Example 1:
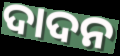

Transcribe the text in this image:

ଦାଦନ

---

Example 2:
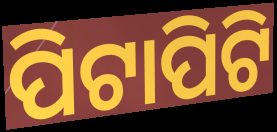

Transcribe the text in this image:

ପିଟାପିଟି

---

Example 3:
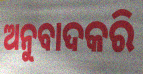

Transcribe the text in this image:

ଅନୁବାଦକରି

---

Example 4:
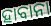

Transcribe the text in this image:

ହାବାନା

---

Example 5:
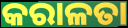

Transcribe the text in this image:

କରାଳତା